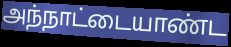
அந்நாட்டையாண்ட